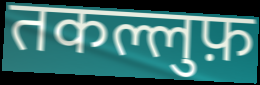
तकल्लुफ़